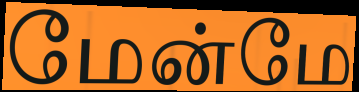
மேன்மே